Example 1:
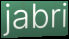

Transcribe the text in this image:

jabri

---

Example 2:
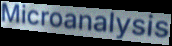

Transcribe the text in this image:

Microanalysis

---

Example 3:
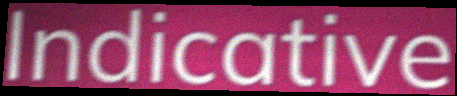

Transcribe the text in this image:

Indicative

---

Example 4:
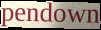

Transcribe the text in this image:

pendown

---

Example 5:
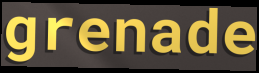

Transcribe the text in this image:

grenade